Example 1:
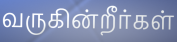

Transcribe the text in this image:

வருகின்றீர்கள்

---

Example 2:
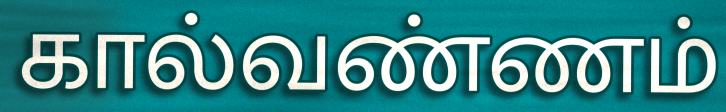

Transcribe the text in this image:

கால்வண்ணம்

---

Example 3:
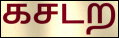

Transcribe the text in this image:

கசடற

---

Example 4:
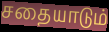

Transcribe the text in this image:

சதையாடும்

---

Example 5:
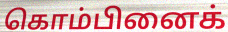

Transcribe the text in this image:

கொம்பினைக்